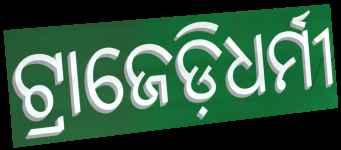
ଟ୍ରାଜେଡ଼ିଧର୍ମୀ